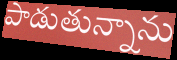
పాడుతున్నాను